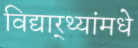
विद्यार्थ्यांमधे